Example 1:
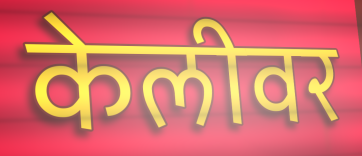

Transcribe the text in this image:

केलीवर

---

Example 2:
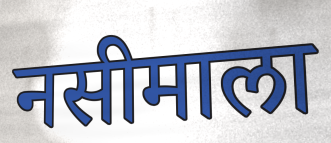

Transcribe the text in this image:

नसीमाला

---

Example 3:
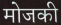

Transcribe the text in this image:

मोजकी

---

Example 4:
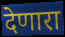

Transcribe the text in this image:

देणारा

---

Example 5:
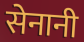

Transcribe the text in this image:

सेनानी